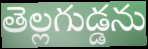
తెల్లగుడ్డను